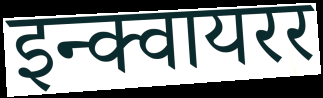
इन्क्वायरर